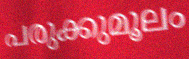
പരുക്കുമൂലം